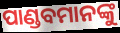
ପାଣ୍ଡବମାନଙ୍କୁ